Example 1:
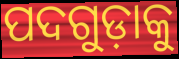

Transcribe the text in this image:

ପଦଗୁଡ଼ାକୁ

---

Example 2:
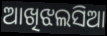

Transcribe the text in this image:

ଆଖିଝଲସିଆ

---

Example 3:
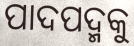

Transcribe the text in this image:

ପାଦପଦ୍ମକୁ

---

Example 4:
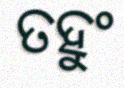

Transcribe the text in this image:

ତହୁଂ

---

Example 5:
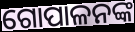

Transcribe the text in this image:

ଗୋପାଳନଙ୍କ